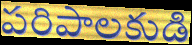
పరిపాలకుడి